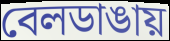
বেলডাঙায়